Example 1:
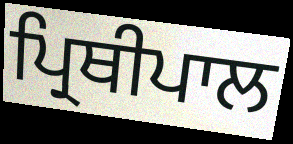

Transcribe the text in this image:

ਪ੍ਰਿਥੀਪਾਲ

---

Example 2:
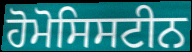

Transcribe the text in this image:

ਹੋਮੋਸਿਸਟੀਨ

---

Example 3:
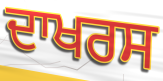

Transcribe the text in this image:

ਦਾਖਰਸ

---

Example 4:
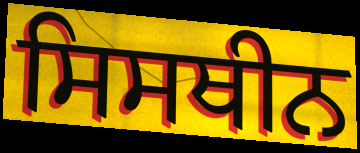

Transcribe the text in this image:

ਸਿਸਥੀਨ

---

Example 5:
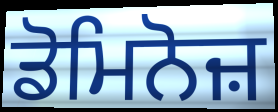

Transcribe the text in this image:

ਡੋਮਿਨੋਜ਼